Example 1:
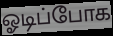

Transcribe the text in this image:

ஓடிப்போக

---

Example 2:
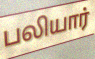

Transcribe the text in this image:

பலியார்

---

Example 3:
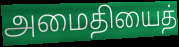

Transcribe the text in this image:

அமைதியைத்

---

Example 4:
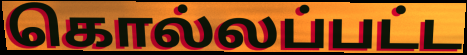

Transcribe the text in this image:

கொல்லப்பட்ட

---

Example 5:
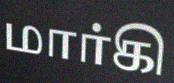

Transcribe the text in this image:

மார்கி